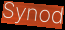
Synod